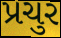
પ્રચુર